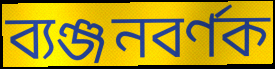
ব্যঞ্জনবৰ্ণক